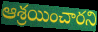
ఆశ్రయించారని